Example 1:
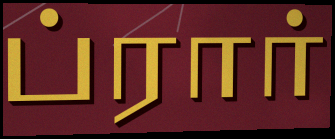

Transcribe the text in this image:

ப்ரார்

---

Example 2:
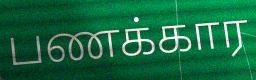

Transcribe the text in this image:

பணக்கார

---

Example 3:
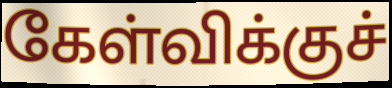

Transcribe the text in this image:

கேள்விக்குச்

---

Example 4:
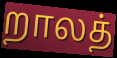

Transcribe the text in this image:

றாலத்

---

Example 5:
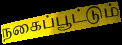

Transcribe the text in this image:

நகைப்பூட்டும்